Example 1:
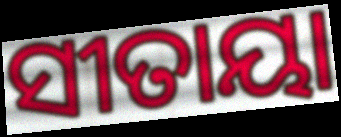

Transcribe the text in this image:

ସୀତାୟା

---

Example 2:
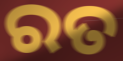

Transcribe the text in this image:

ରତ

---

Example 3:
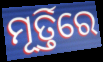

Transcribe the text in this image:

ମୂର୍ତ୍ତିରେ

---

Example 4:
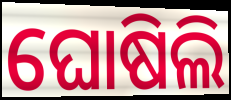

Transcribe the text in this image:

ଘୋଷିଲି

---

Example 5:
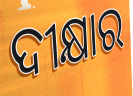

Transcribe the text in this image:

ଦୀକ୍ଷାର